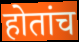
होतांच